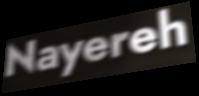
Nayereh